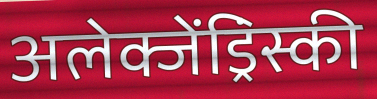
अलेक्जेंड्रिंस्की